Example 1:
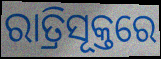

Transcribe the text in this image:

ରାତ୍ରିସୂକ୍ତରେ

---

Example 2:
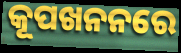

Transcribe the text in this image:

କୂପଖନନରେ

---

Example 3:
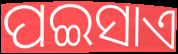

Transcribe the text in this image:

ପଇସାଏ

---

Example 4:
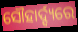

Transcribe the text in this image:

ସୌହାର୍ଦ୍ଦ୍ୟରେ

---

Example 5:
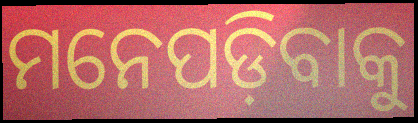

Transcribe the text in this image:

ମନେପଡ଼ିବାକୁ